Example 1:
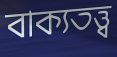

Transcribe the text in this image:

বাক্যতত্ত্ব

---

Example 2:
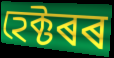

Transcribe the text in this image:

হেক্টৰৰ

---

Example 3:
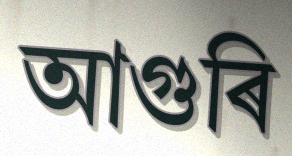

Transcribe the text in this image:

আগুৰি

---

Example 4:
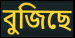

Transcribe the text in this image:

বুজিছে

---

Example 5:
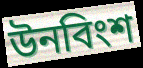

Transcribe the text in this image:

উনবিংশ